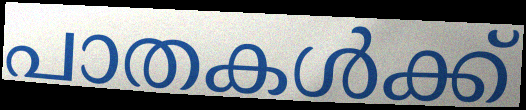
പാതകൾക്ക്